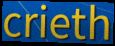
crieth